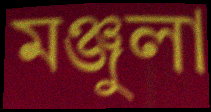
মঞ্জুলা